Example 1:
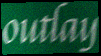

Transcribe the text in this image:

outlay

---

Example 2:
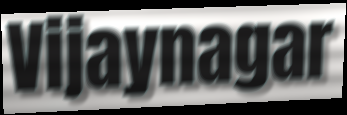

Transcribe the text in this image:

Vijaynagar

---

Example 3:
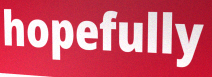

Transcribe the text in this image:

hopefully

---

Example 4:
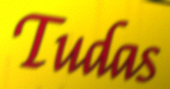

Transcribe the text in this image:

Tudas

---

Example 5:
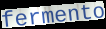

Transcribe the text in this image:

fermento